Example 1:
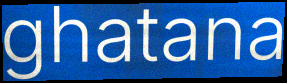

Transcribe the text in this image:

ghatana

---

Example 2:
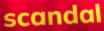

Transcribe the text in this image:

scandal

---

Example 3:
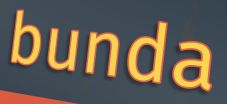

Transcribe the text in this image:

bunda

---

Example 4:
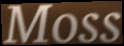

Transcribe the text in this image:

Moss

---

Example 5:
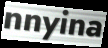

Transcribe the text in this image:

nnyina